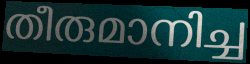
തീരുമാനിച്ച